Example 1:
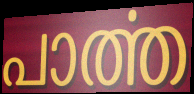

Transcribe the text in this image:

പാൎത്ത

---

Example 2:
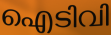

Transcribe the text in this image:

ഐടിവി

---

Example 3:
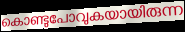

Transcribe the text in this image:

കൊണ്ടുപോവുകയായിരുന്ന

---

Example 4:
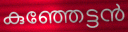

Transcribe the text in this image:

കുഞ്ഞേട്ടൻ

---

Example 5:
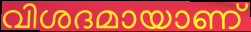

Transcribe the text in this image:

വിശദമായാണ്